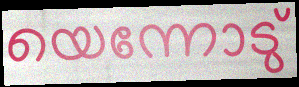
യെന്നോടു്